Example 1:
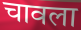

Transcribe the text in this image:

चावला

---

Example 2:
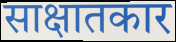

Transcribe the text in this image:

साक्षातकार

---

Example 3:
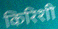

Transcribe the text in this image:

किरिशी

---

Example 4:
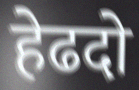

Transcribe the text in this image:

हेढदो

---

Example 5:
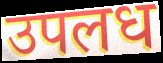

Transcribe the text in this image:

उपलध